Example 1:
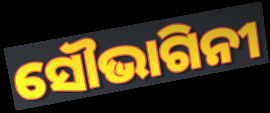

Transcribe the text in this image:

ସୌଭାଗିନୀ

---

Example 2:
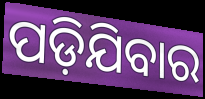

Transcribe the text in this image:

ପଡ଼ିଯିବାର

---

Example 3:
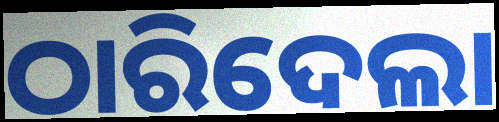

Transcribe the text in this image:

ଠାରିଦେଲା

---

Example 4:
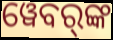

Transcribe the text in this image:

ୱେବର୍‌ଙ୍କ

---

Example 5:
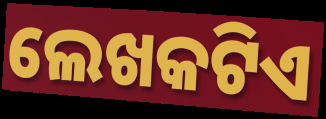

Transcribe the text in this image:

ଲେଖକଟିଏ